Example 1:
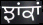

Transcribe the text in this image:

ਝਾਂਕਾਂ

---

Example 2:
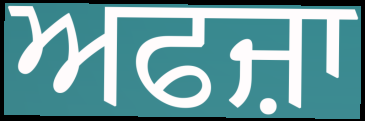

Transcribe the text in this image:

ਅਫਜ਼ਾ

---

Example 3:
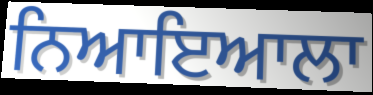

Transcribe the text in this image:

ਨਿਆਇਆਲਾ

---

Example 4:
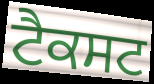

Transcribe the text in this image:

ਟੈਕਸਟ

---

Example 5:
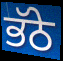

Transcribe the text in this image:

ਭੱਠੇ